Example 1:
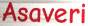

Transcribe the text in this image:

Asaveri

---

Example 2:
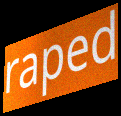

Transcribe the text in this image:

raped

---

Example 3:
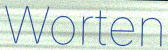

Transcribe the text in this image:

Worten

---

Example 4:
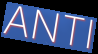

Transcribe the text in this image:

ANTI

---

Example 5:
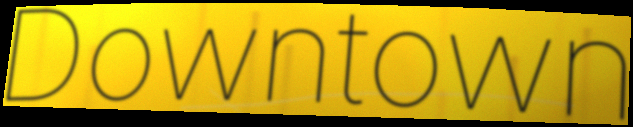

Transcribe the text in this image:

Downtown